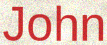
John